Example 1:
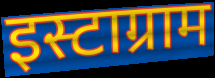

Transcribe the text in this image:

इस्टाग्राम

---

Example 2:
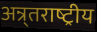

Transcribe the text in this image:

अन्र्तराष्ट्रीय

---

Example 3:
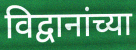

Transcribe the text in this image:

विद्वानांच्या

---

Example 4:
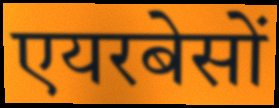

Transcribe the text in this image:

एयरबेसों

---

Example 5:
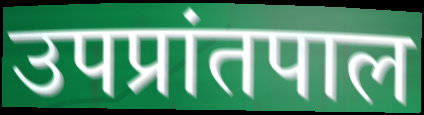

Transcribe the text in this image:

उपप्रांतपाल